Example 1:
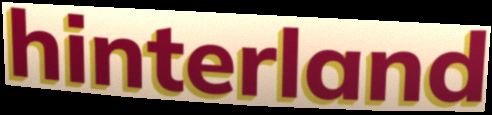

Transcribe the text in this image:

hinterland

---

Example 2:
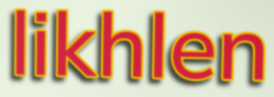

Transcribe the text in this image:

likhlen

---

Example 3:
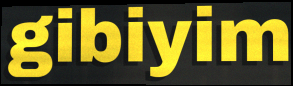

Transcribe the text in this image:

gibiyim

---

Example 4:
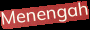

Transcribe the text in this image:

Menengah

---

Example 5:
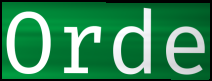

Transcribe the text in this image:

Orde